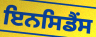
ਇਨਸਿਡੈਂਸ